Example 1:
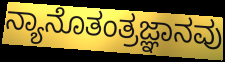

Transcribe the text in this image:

ನ್ಯಾನೊತಂತ್ರಜ್ಞಾನವು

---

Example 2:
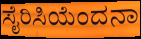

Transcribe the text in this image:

ಸೈರಿಸಿಯೆಂದನಾ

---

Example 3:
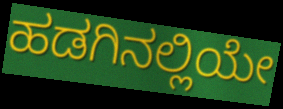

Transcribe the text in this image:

ಹಡಗಿನಲ್ಲಿಯೇ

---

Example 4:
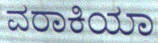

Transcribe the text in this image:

ವರಾಕಿಯಾ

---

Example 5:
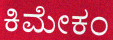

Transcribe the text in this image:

ಕಿಮೇಕಂ